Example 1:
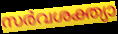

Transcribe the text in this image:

സർവശക്ത്യാ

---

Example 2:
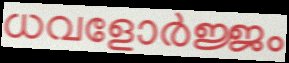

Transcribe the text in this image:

ധവളോർജ്ജം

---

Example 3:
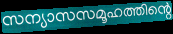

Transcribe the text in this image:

സന്യാസസമൂഹത്തിന്റെ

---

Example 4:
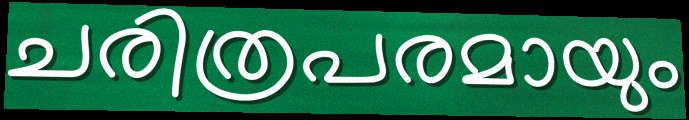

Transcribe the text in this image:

ചരിത്രപരമായും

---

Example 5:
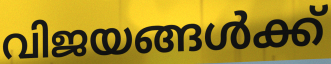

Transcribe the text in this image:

വിജയങ്ങൾക്ക്